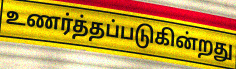
உணர்த்தப்படுகின்றது